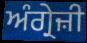
ਅੰਗ੍ਰੇਜ਼ੀ